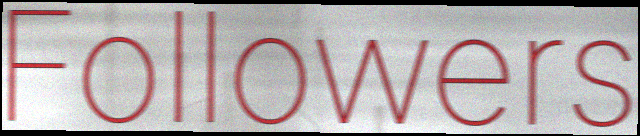
Followers